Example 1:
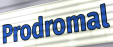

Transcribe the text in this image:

Prodromal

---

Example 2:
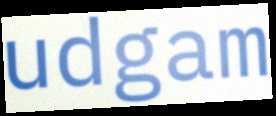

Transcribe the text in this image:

udgam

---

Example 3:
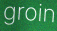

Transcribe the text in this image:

groin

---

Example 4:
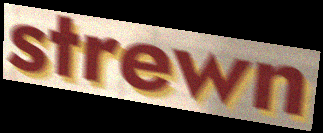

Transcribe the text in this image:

strewn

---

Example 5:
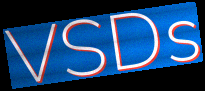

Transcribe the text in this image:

VSDs